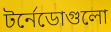
টর্নেডোগুলো